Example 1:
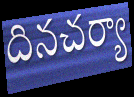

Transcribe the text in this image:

దినచర్యా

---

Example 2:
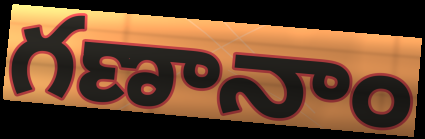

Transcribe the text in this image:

గణానాం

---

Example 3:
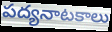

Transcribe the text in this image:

పద్యనాటకాలు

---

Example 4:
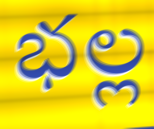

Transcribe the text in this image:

భల్ల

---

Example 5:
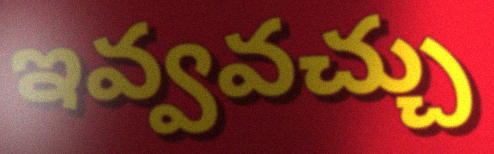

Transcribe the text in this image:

ఇవ్వవచ్చు